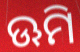
ଊମି